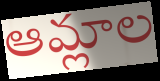
ఆమ్లాల